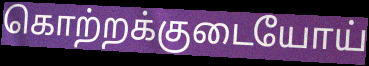
கொற்றக்குடையோய்